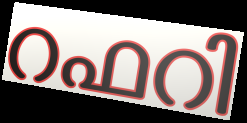
റഫറി